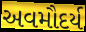
અવમૌદર્ય